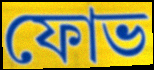
ফোভ